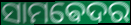
ସାମଵେଦର